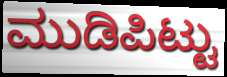
ಮುಡಿಪಿಟ್ಟು